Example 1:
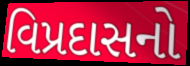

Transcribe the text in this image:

વિપ્રદાસનો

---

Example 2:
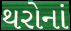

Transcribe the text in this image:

થરોનાં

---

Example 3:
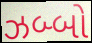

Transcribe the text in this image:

ઝબ્બો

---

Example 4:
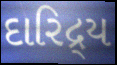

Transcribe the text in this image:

દારિદ્ર્ય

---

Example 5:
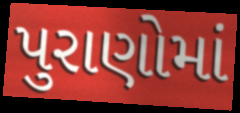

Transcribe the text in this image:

પુરાણોમાં